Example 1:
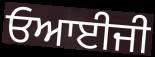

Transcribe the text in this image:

ਓਆਈਜੀ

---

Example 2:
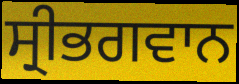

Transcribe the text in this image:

ਸ੍ਰੀਭਗਵਾਨ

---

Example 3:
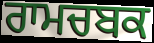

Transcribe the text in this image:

ਰਾਮਚਬਕ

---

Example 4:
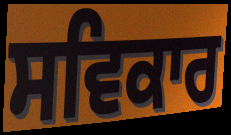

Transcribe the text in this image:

ਸਵਿਕਾਰ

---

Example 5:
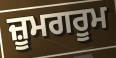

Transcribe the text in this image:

ਜ਼ੂਮਗਰੂਮ